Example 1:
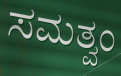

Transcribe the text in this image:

ಸಮತ್ವಂ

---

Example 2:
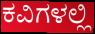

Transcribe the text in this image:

ಕವಿಗಳಲ್ಲಿ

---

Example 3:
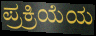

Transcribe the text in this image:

ಪ್ರಕ್ರಿಯೆಯ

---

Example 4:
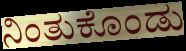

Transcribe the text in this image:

ನಿಂತುಕೊಂಡು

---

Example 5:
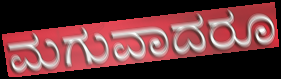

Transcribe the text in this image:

ಮಗುವಾದರೂ